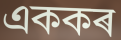
এককৰ